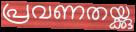
പ്രവണതയ്ക്കു